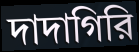
দাদাগিরি